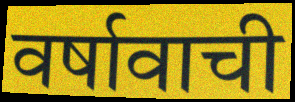
वर्षावाची